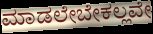
ಮಾಡಲೇಬೇಕಲ್ಲವೇ